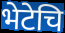
भेटेचि